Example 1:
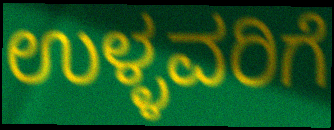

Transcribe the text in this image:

ಉಳ್ಳವರಿಗೆ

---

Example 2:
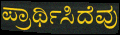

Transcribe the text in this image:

ಪ್ರಾರ್ಥಿಸಿದೆವು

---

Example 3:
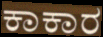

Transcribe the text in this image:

ಕಾಕಾರ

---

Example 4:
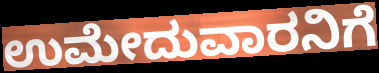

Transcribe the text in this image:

ಉಮೇದುವಾರನಿಗೆ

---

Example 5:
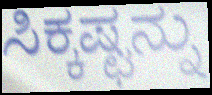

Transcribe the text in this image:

ಸಿಕ್ಕಷ್ಟನ್ನು